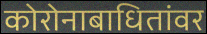
कोरोनाबाधितांवर